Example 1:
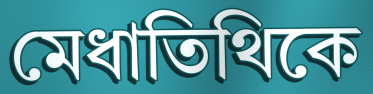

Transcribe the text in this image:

মেধাতিথিকে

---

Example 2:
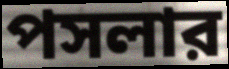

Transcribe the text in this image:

পসলার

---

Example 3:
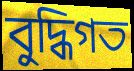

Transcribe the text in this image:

বুদ্ধিগত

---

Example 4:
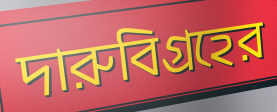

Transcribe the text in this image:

দারুবিগ্রহের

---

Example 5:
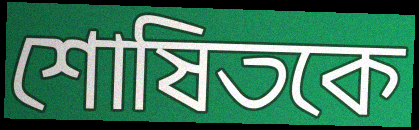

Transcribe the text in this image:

শোষিতকে